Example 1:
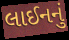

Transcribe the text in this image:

લાઈનનું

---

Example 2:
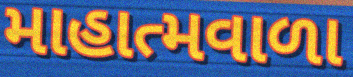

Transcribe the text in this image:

માહાત્મવાળા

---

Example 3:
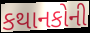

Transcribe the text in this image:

કથાનકોની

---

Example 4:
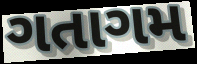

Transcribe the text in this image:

ગતાગમ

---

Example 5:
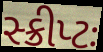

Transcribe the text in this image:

સ્ક્રીપ્ટઃ